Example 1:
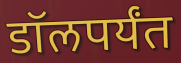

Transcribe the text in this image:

डॉलपर्यंत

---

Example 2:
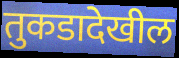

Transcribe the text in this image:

तुकडादेखील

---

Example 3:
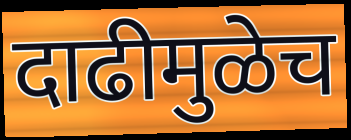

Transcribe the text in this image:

दाढीमुळेच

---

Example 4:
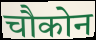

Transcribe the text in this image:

चौकोन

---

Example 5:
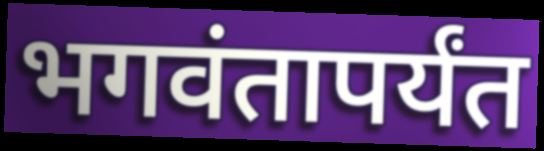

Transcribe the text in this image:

भगवंतापर्यंत